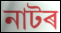
নাটৰ